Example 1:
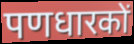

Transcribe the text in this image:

पणधारकों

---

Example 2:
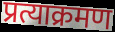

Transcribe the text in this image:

प्रत्याक्रमण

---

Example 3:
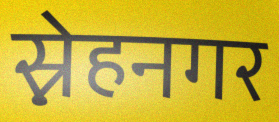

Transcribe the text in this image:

स्नेहनगर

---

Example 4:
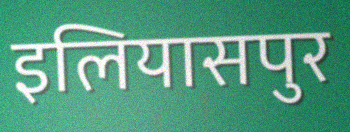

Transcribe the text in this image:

इलियासपुर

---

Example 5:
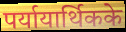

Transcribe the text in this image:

पर्यायार्थिकके